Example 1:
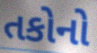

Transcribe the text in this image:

તકોનો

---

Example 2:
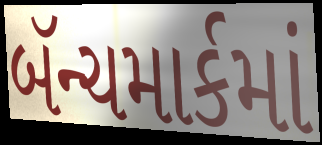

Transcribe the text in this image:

બૅન્ચમાર્કમાં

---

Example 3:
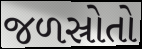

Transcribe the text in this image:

જળસ્રોતો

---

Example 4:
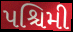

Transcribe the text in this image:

પશ્ચિમી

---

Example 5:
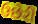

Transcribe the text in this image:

ઉછેરી